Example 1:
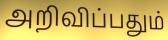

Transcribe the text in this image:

அறிவிப்பதும்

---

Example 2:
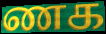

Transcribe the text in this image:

ணக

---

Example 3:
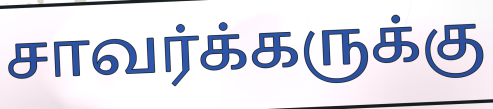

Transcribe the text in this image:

சாவர்க்கருக்கு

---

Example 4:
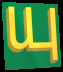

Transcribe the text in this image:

யு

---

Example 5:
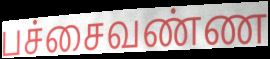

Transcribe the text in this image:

பச்சைவண்ண